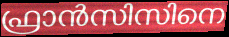
ഫ്രാൻസിസിനെ